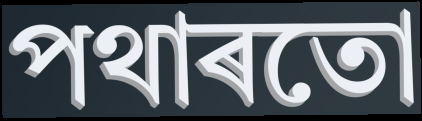
পথাৰতো